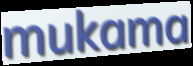
mukama